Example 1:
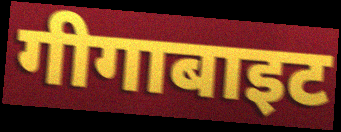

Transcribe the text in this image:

गीगाबाइट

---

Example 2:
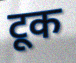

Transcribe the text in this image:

टूक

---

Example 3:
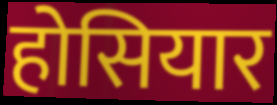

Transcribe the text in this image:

होसियार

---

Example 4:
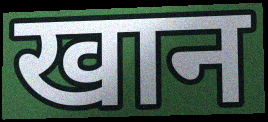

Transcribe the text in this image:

खान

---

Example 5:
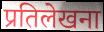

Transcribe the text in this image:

प्रतिलेखना